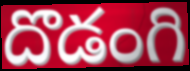
దొడంగి